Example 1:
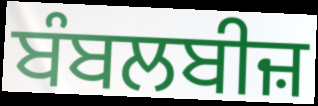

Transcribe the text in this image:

ਬੰਬਲਬੀਜ਼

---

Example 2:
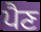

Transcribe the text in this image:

ਪੈਣ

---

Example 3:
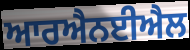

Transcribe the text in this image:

ਆਰਐਨਈਐਲ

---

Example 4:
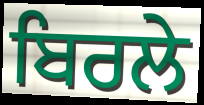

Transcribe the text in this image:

ਬਿਰਲੇ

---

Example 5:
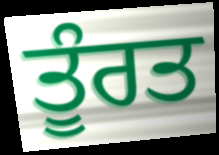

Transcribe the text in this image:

ਤੂੰਰਤ